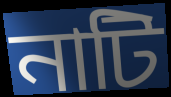
নাটি